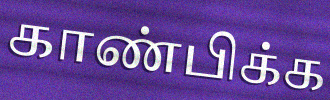
காண்பிக்க